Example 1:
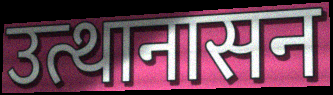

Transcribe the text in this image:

उत्थानासन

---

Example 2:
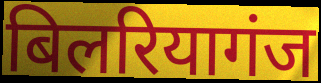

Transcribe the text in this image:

बिलरियागंज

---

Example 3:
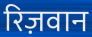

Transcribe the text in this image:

रिज़वान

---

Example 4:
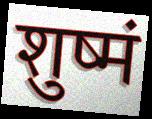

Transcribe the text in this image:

शुष्मं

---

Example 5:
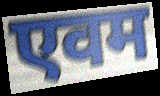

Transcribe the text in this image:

एवम